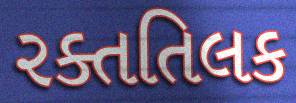
રક્તતિલક